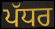
ਪੱਧਰ